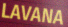
LAVANA